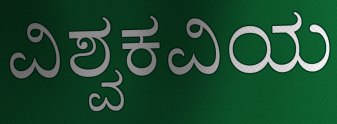
ವಿಶ್ವಕವಿಯ